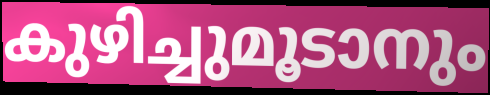
കുഴിച്ചുമൂടാനും